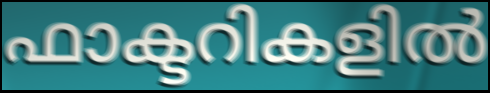
ഫാക്ടറികളിൽ